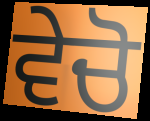
ਵੇਚੋ